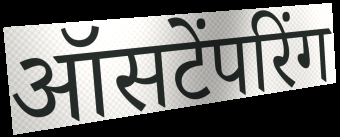
ऑसटेंपरिंग